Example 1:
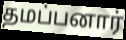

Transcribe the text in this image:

தமப்பனார்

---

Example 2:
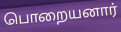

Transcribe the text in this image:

பொறையனார்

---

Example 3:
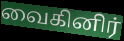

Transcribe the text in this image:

வைகினிர்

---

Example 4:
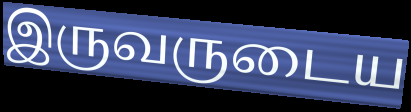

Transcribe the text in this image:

இருவருடைய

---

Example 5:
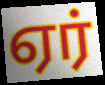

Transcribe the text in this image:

ஏர்